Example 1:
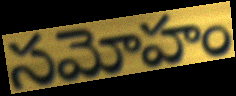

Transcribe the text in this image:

సమోహం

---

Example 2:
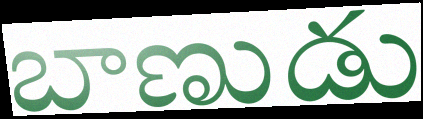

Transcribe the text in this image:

బాణుడు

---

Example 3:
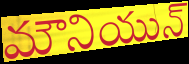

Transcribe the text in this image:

మౌనియున్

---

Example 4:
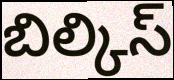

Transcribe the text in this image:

బిల్కిస్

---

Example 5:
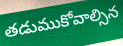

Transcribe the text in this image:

తడుముకోవాల్సిన